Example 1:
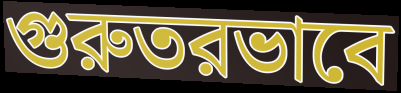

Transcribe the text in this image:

গুরুতরভাবে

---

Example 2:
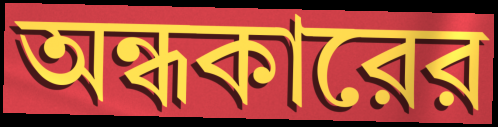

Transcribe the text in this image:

অন্ধকারের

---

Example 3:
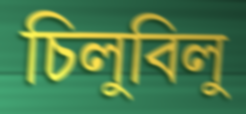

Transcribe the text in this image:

চিলুবিলু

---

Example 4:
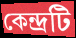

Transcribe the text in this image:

কেন্দ্রটি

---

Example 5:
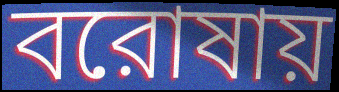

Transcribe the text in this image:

বরোষায়